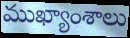
ముఖ్యాంశాలు